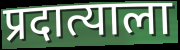
प्रदात्याला